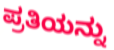
ಪ್ರತಿಯನ್ನು